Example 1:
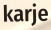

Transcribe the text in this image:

karje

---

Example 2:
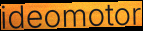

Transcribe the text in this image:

ideomotor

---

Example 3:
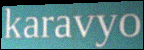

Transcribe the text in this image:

karavyo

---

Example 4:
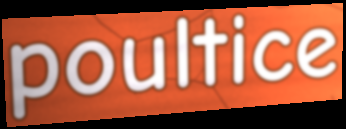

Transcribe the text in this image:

poultice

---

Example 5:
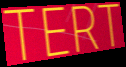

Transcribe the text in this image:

TERT